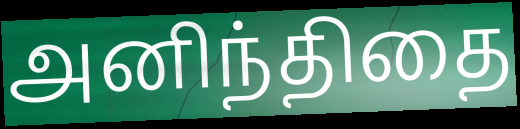
அனிந்திதை